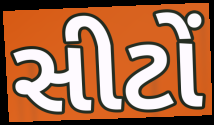
સીટોં